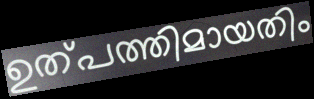
ഉത്പത്തിമായതിം